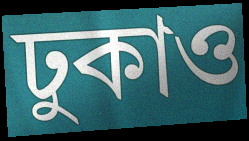
ঢুকাও